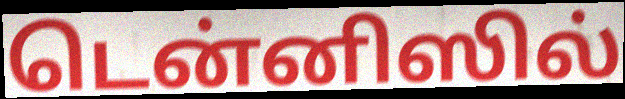
டென்னிஸில்